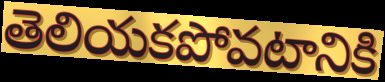
తెలియకపోవటానికి